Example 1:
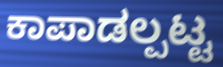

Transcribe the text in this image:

ಕಾಪಾಡಲ್ಪಟ್ಟ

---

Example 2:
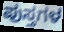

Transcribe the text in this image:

ಪುಸ್ತಗಳ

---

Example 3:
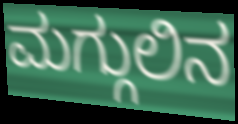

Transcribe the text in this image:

ಮಗ್ಗುಲಿನ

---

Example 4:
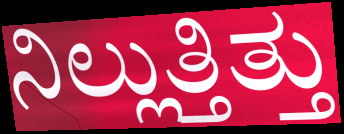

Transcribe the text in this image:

ನಿಲ್ಲುತ್ತಿತ್ತು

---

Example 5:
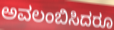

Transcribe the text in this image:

ಅವಲಂಬಿಸಿದರೂ